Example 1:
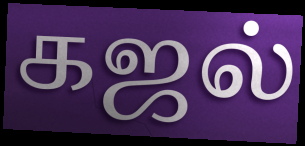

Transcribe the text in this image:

கஜல்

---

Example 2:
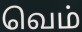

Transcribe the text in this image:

வெம்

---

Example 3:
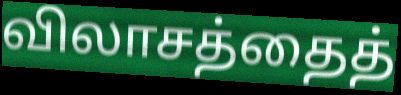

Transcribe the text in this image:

விலாசத்தைத்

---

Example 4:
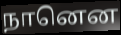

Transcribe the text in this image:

நானென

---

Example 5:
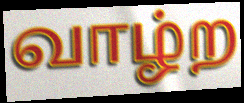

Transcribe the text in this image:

வாழ்ற